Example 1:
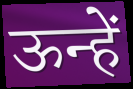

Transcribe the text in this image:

ऊन्हें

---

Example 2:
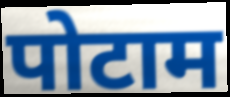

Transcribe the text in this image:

पोटाम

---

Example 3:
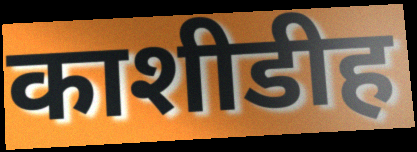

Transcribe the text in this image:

काशीडीह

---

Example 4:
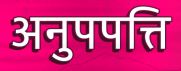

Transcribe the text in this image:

अनुपपत्ति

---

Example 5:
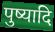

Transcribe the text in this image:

पुष्यादि